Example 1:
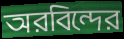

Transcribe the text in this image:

অরবিন্দের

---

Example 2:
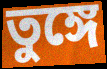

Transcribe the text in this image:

তুঙ্গে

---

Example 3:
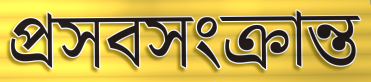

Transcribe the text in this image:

প্রসবসংক্রান্ত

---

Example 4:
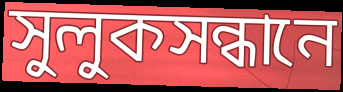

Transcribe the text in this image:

সুলুকসন্ধানে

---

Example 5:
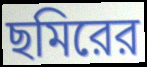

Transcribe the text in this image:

ছমিরের